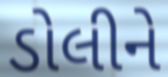
ડોલીને